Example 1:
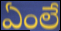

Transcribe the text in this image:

ఏంలే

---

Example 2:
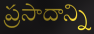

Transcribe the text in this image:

ప్రసాదాన్ని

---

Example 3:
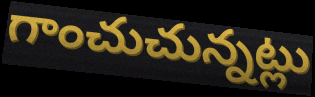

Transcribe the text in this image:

గాంచుచున్నట్లు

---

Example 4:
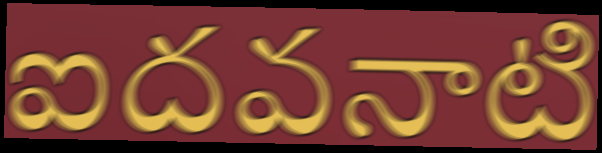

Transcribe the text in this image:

ఐదవనాటి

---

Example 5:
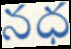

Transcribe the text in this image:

నధ